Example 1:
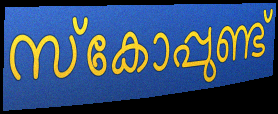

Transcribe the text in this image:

സ്കോപ്പുണ്ട്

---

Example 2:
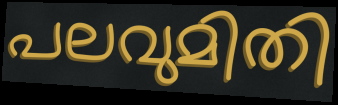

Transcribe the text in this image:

പലവുമിതി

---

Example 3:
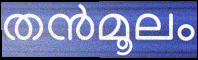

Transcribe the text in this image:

തൻമൂലം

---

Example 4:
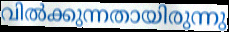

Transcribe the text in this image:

വിൽക്കുന്നതായിരുന്നു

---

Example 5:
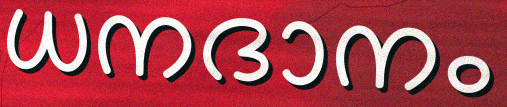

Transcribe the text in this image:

ധനദാനം